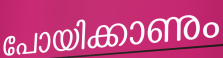
പോയിക്കാണും